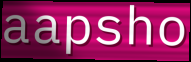
aapsho